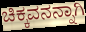
ಚಿಕ್ಕವನನ್ನಾಗಿ